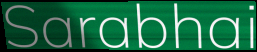
Sarabhai